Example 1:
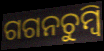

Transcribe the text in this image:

ଗଗନଚୁମ୍ବି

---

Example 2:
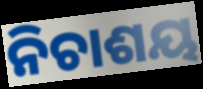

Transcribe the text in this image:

ନିଚାଶୟ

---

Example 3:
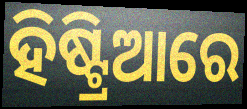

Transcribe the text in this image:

ହିଷ୍ଟ୍ରିଆରେ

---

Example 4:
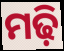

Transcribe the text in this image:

ମଢ଼ି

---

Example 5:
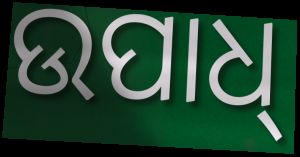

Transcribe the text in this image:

ଉପାଧ୍